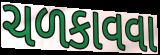
ચળકાવવા